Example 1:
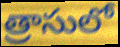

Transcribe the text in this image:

త్రాసులో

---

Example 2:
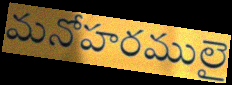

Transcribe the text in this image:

మనోహరములై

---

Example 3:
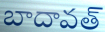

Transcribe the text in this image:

బాదావత్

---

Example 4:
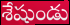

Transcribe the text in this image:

శేషుండు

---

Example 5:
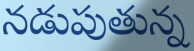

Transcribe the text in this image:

నడుపుతున్న